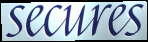
secures